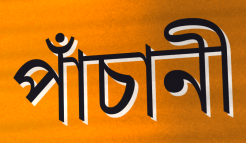
পাঁচানী